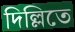
দিল্লিতে